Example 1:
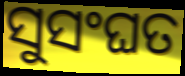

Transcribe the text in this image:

ସୁସଂଘତ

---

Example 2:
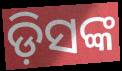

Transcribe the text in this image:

ଡ଼ିସଙ୍କ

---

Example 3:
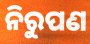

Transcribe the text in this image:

ନିରୁପଣ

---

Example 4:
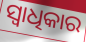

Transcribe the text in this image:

ସ୍ଵାଧିକାର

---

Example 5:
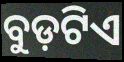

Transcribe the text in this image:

ବୁଡ଼ଟିଏ